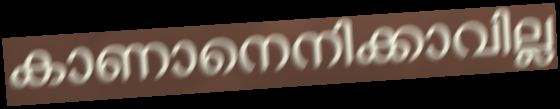
കാണാനെനിക്കാവില്ല